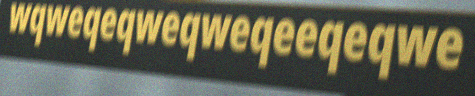
wqweqeqweqweqeeqeqwe